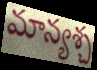
మాన్యశ్చ